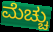
ಮೆಚ್ಚು